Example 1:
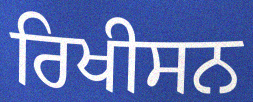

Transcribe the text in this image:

ਰਿਖੀਸਨ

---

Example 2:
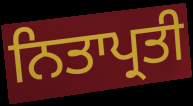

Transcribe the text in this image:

ਨਿਤਾਪ੍ਰਤੀ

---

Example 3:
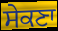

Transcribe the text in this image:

ਸੇਕਣਾ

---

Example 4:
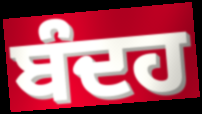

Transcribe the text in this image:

ਬੰਦਹ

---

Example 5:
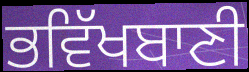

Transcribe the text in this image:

ਭਵਿੱਖਬਾਣੀ